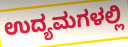
ಉದ್ಯಮಗಳಲ್ಲಿ